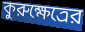
কুরুক্ষেত্রের